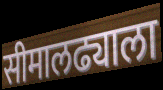
सीमालढ्याला